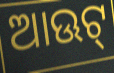
ଆଊଟ୍